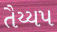
તૈય્યપ